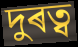
দুৰত্ব